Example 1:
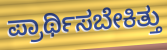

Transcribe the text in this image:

ಪ್ರಾರ್ಥಿಸಬೇಕಿತ್ತು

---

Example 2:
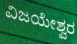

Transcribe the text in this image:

ವಿಜಯೇಶ್ವರ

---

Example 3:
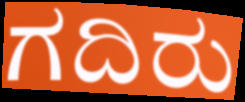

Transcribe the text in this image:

ಗದಿರು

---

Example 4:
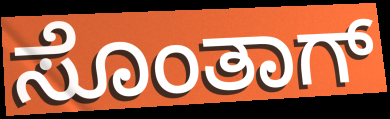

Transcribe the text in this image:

ಸೊಂತಾಗ್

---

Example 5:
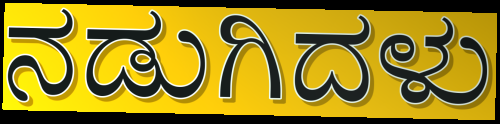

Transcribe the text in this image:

ನಡುಗಿದಳು